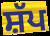
ਸ਼ੱਪ